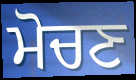
ਮੋਚਣ